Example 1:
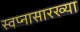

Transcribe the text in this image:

स्वप्नासारख्या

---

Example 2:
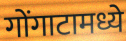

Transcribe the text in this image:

गोंगाटामध्ये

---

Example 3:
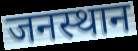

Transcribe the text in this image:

जनस्थान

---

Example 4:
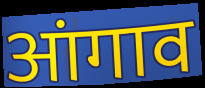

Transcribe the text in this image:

आंगाव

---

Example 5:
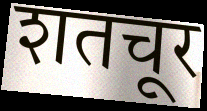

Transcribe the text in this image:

शतचूर